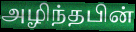
அழிந்தபின்